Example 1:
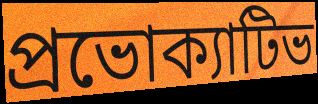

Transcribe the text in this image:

প্রভোক্যাটিভ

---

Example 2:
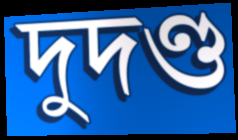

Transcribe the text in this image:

দুদণ্ড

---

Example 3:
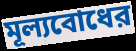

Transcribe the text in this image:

মূল্যবোধের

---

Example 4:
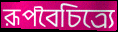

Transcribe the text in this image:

রূপবৈচিত্র্যে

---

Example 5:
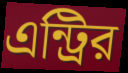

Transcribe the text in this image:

এন্ট্রির